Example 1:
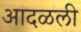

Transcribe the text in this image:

आदळली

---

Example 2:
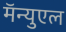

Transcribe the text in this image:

मॅन्युएल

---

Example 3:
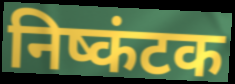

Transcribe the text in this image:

निष्कंटक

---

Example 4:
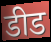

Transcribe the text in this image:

डीड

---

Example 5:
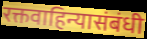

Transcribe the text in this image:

रक्तवाहिन्यासंबंधी